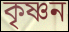
কৃষ্ণন